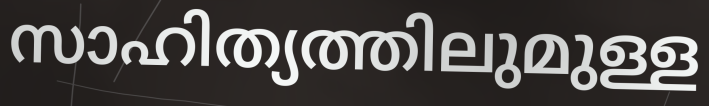
സാഹിത്യത്തിലുമുള്ള